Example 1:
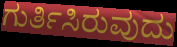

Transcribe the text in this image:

ಗುರ್ತಿಸಿರುವುದು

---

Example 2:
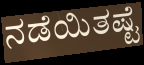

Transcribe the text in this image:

ನಡೆಯಿತಷ್ಟೆ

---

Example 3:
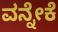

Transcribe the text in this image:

ವನ್ನೇಕೆ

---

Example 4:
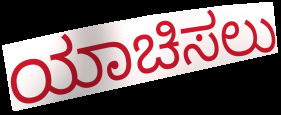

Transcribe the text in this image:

ಯಾಚಿಸಲು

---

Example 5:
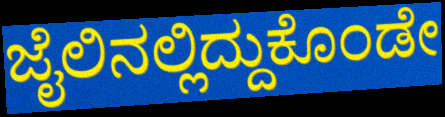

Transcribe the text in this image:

ಜೈಲಿನಲ್ಲಿದ್ದುಕೊಂಡೇ